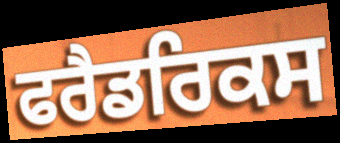
ਫਰੈਡਰਿਕਸ